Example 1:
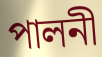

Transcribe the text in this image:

পালনী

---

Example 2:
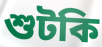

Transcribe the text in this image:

শুটকি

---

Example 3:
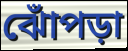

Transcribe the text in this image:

ঝোঁপড়া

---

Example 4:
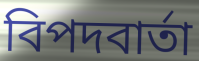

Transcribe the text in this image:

বিপদবার্তা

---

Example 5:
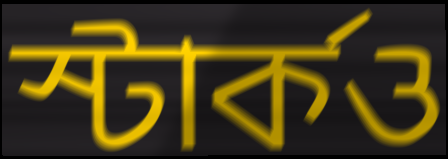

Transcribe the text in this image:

স্টার্কও